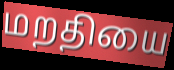
மறதியை